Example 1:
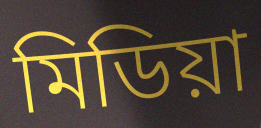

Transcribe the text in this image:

মিডিয়া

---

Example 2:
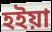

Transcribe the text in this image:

হইয়া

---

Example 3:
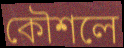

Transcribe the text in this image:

কৌশলে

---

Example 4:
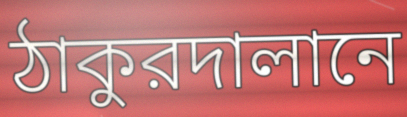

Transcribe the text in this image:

ঠাকুরদালানে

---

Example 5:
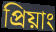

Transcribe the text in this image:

প্রিয়াং